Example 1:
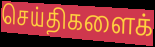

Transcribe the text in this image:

செய்திகளைக்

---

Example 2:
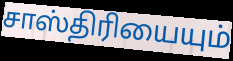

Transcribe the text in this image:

சாஸ்திரியையும்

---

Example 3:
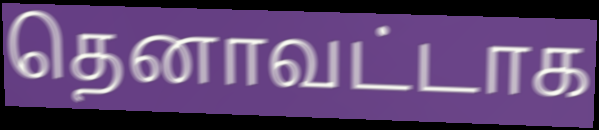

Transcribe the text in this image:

தெனாவட்டாக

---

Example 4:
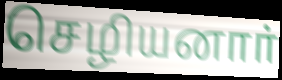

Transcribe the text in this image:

செழியனார்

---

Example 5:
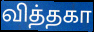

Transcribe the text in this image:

வித்தகா